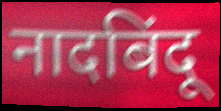
नादबिंदू